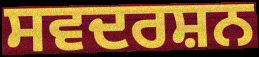
ਸਵਦਰਸ਼ਨ